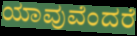
ಯಾವುವೆಂದರೆ